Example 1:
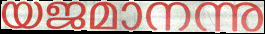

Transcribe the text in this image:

യജമാനന്നു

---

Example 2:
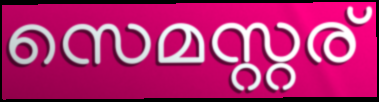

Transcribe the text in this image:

സെമസ്റ്റര്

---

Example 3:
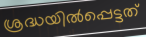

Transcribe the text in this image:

ശ്രദ്ധയിൽപ്പെട്ടത്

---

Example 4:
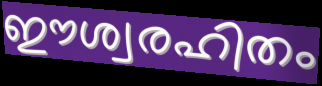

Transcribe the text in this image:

ഈശ്വരഹിതം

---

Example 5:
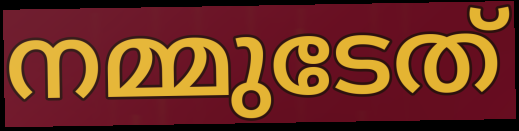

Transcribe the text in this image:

നമ്മുടേത്